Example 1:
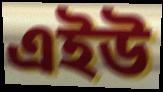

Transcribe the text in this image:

এইউ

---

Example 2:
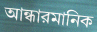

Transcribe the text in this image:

আন্ধারমানিক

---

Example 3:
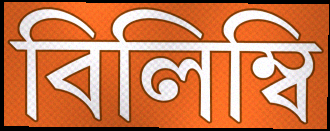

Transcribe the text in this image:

বিলিম্বি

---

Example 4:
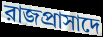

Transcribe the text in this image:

রাজপ্রাসাদে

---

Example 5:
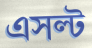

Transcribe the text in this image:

এসল্ট